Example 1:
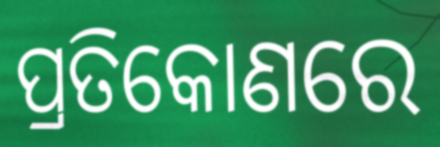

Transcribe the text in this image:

ପ୍ରତିକୋଣରେ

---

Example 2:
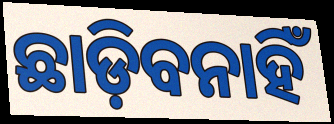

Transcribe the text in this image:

ଛାଡ଼ିବନାହିଁ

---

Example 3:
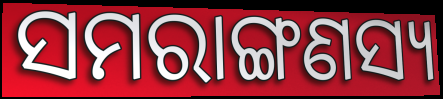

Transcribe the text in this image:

ସମରାଙ୍ଗଣସ୍ୟ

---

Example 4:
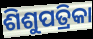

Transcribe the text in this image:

ଶିଶୁପତ୍ରିକା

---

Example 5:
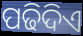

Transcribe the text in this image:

ପଢିଦିଏ